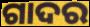
ଗାଦର